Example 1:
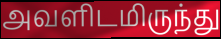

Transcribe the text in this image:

அவளிடமிருந்து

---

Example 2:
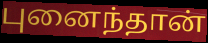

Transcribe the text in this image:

புனைந்தான்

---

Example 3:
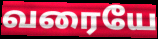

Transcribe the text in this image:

வரையே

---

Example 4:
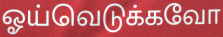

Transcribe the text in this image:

ஓய்வெடுக்கவோ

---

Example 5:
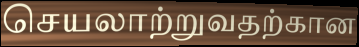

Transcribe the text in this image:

செயலாற்றுவதற்கான